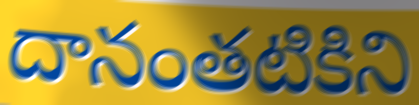
దానంతటికిని